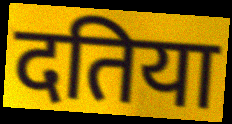
दतिया